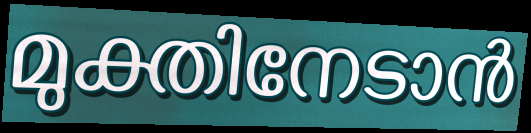
മുക്തിനേടാൻ